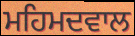
ਮਹਿਮਦਵਾਲ